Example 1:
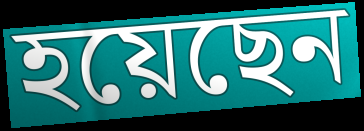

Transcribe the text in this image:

হয়েছেন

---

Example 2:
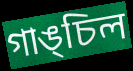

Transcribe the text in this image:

গাঙ্‌চিল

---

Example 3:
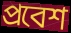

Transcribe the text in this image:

প্রবেশ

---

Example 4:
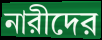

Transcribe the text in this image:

নারীদের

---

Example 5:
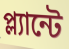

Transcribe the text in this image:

প্ল্যান্টে